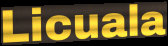
Licuala